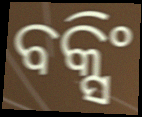
ବକ୍ସିଂ